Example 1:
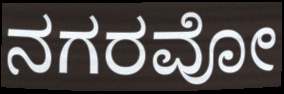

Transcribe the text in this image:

ನಗರವೋ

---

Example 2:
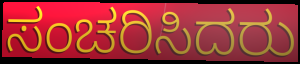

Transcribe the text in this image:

ಸಂಚರಿಸಿದರು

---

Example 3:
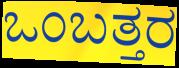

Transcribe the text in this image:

ಒಂಬತ್ತರ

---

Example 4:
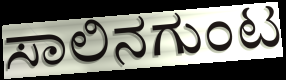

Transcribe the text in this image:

ಸಾಲಿನಗುಂಟ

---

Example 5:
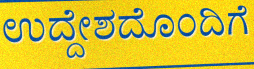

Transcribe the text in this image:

ಉದ್ದೇಶದೊಂದಿಗೆ